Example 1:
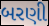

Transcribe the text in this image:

બરણી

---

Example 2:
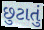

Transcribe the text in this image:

છુટાતું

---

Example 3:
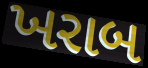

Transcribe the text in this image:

ખરાબ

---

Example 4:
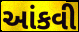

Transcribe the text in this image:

આંકવી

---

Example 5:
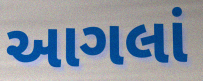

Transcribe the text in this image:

આગલાં